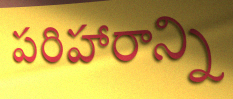
పరిహారాన్ని